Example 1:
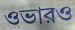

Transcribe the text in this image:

ওভারও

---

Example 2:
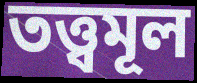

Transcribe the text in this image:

তত্ত্বমূল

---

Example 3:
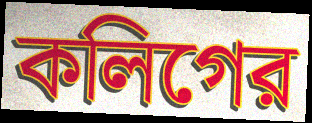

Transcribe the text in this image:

কলিগের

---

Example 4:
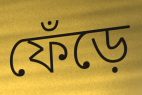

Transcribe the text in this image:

ফেঁড়ে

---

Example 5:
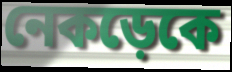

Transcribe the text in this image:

নেকড়েকে